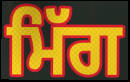
ਮਿੱਗ